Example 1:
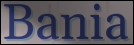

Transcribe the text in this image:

Bania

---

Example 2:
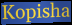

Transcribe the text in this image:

Kopisha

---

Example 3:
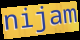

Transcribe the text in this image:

nijam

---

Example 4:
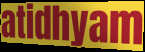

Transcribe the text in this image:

atidhyam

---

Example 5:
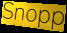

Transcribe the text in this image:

Snopp